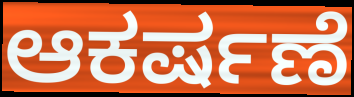
ಆಕರ್ಷಣೆ